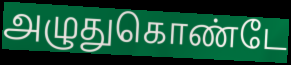
அழுதுகொண்டே